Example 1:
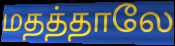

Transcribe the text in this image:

மதத்தாலே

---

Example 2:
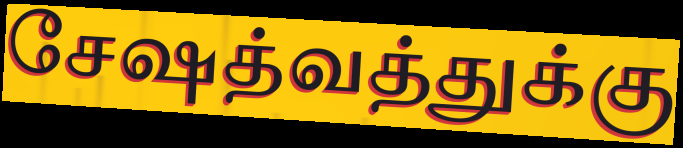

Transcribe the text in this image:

சேஷத்வத்துக்கு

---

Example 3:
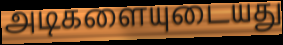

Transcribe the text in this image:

அடிகளையுடையது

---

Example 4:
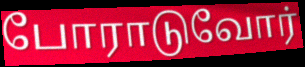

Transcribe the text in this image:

போராடுவோர்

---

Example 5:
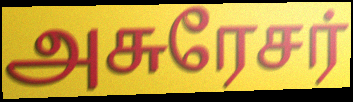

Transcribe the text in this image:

அசுரேசர்